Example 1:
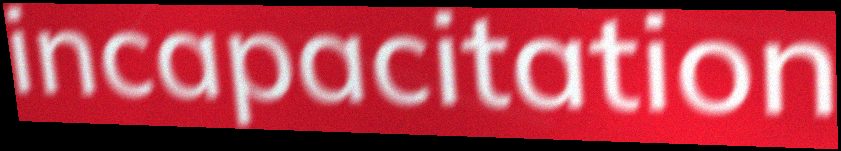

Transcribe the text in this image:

incapacitation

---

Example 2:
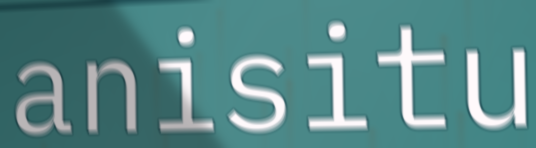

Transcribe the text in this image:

anisitu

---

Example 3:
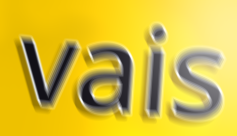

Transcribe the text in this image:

vais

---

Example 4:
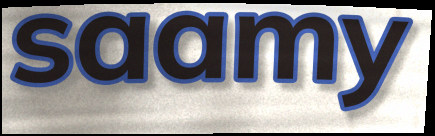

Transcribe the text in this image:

saamy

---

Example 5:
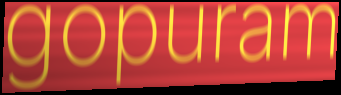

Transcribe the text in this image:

gopuram